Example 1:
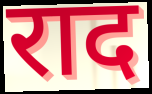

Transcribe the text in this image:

राद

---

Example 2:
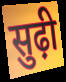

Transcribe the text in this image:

सुढ़ी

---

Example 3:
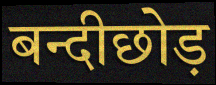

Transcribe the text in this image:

बन्दीछोड़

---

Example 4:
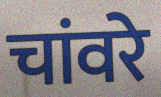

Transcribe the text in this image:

चांवरे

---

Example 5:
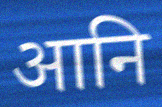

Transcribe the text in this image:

आनि